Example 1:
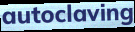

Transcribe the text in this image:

autoclaving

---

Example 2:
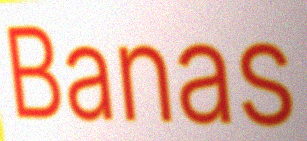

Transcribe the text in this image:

Banas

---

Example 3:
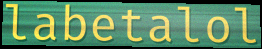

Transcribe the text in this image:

labetalol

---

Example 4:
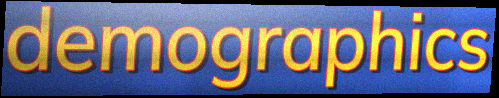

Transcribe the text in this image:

demographics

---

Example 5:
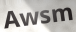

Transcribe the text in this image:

Awsm